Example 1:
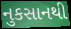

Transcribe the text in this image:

નુકસાનથી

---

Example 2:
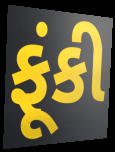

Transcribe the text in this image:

ફૂંકી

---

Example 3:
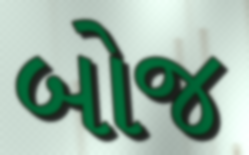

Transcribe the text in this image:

બોજ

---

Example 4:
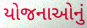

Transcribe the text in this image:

યોજનાઓનું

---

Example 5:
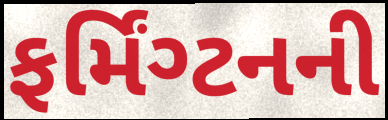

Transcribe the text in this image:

ફર્મિંગ્ટનની